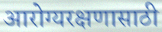
आरोग्यरक्षणासाठी